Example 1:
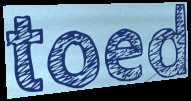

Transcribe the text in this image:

toed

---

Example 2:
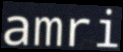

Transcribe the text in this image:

amri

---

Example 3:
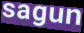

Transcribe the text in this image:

sagun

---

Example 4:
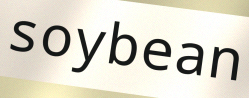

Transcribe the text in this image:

soybean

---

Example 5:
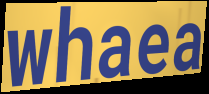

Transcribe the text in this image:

whaea